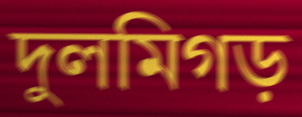
দুলমিগড়